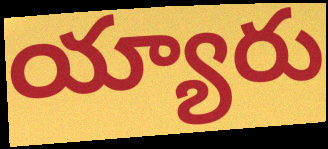
య్యారు